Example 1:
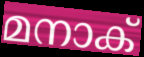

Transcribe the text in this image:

മനാക്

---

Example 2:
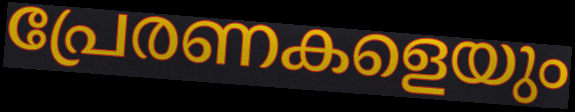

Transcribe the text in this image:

പ്രേരണകളെയും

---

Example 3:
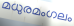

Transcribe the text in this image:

മധുരമംഗലം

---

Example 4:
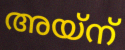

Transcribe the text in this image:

അയ്ന്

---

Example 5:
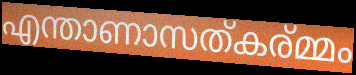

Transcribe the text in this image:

എന്താണാസത്കര്മ്മം